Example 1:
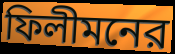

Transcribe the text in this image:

ফিলীমনের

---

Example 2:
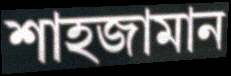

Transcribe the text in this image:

শাহজামান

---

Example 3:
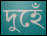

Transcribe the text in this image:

দুহেঁ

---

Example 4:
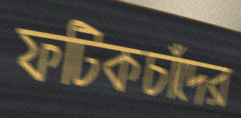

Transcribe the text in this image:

ফটিকচাঁদের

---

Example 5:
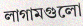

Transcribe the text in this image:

লাগামগুলো